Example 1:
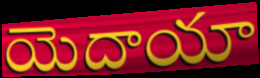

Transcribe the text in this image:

యెదాయా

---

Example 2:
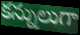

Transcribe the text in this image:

కన్నులుగా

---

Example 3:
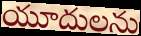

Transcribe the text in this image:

యూదులను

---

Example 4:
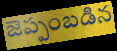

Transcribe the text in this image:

జెప్పంబడిన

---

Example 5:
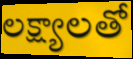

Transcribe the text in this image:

లక్ష్యాలతో